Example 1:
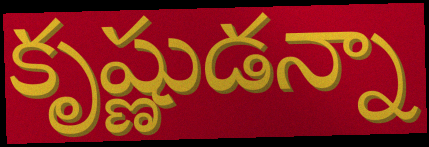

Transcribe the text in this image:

కృష్ణుడన్నా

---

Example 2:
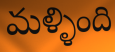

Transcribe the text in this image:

మళ్ళింది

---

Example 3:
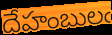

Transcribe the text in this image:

దేహంబులఁ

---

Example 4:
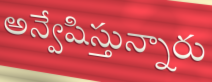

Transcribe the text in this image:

అన్వేషిస్తున్నారు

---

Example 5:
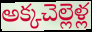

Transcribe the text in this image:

అక్కచెల్లెళ్ల